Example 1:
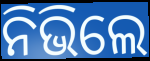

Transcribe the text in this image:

ନିଭିଲେ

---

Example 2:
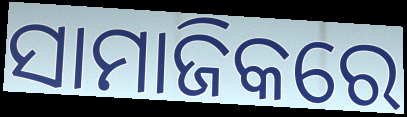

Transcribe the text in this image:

ସାମାଜିକରେ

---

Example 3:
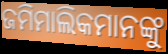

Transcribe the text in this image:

ଜମିମାଲିକମାନଙ୍କୁ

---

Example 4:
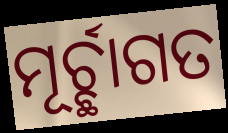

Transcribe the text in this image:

ମୂର୍ଚ୍ଛାଗତ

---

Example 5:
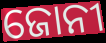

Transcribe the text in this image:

ଜୋନୀ